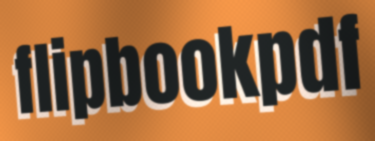
flipbookpdf